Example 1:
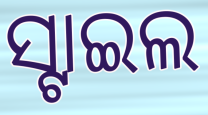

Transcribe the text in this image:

ସ୍ଟାଇଲ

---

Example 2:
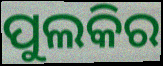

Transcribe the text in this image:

ପୁଲକିର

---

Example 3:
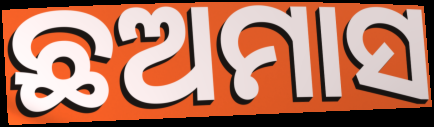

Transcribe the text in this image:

ଛଅମାସ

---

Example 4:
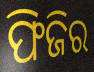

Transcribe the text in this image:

ଫିଜିର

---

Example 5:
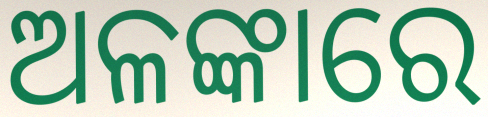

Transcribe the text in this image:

ଅଳଙ୍କାରେ